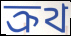
ক্রথ